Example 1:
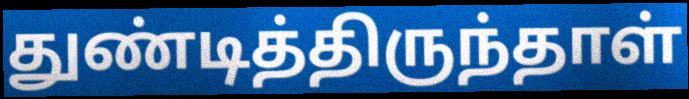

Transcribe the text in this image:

துண்டித்திருந்தாள்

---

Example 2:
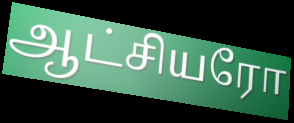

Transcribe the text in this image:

ஆட்சியரோ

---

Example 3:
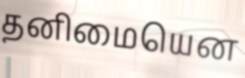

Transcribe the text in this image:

தனிமையென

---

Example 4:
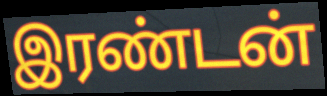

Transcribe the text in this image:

இரண்டன்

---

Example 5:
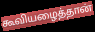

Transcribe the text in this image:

கூவியழைத்தான்